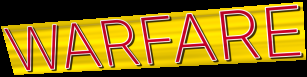
WARFARE